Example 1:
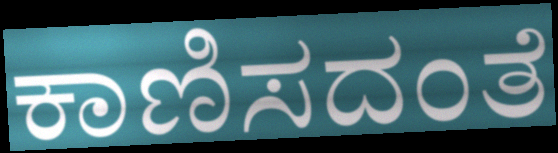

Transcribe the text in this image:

ಕಾಣಿಸದಂತೆ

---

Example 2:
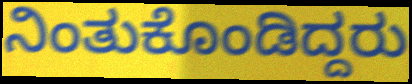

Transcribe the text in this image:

ನಿಂತುಕೊಂಡಿದ್ದರು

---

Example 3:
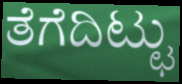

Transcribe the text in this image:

ತೆಗೆದಿಟ್ಟು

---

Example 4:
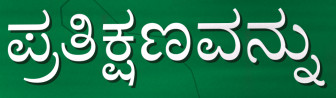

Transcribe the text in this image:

ಪ್ರತಿಕ್ಷಣವನ್ನು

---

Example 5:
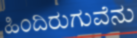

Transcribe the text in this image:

ಹಿಂದಿರುಗುವೆನು